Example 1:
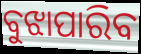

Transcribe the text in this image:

ବୁଝାପାରିବ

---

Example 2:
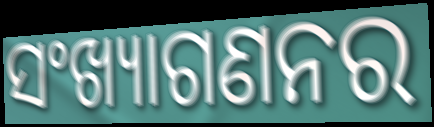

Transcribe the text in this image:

ସଂଖ୍ୟାଗଣନର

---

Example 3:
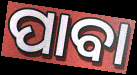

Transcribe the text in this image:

ପାବା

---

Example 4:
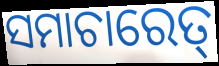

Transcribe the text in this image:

ସମାଚାରେତ୍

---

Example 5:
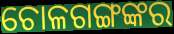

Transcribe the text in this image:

ଚୋଳଗଙ୍ଗଙ୍କର